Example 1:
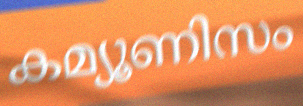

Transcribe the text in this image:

കമ്യൂണിസം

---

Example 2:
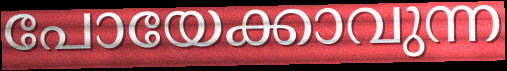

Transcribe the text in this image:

പോയേക്കാവുന്ന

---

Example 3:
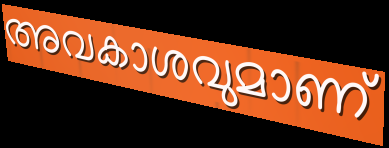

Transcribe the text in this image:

അവകാശവുമാണ്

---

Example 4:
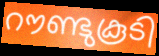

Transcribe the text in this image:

റൗണ്ടുകൂടി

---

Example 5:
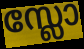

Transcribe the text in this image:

സ്ലോ